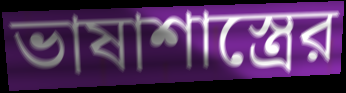
ভাষাশাস্ত্রের